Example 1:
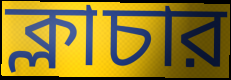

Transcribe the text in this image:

ক্লাচার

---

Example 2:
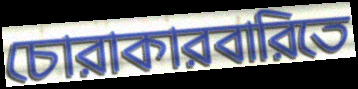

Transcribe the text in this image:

চোরাকারবারিতে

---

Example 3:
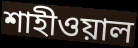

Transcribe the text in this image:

শাহীওয়াল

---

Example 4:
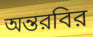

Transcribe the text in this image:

অন্তরবির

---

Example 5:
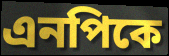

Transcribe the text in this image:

এনপিকে